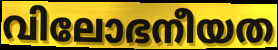
വിലോഭനീയത